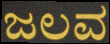
ಜಲವ